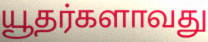
யூதர்களாவது